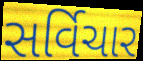
સર્વિચાર